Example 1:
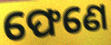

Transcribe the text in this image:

ଫେଣେ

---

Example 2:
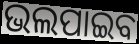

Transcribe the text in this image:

ଭଲପାଇବ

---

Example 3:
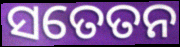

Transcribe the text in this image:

ସତେତନ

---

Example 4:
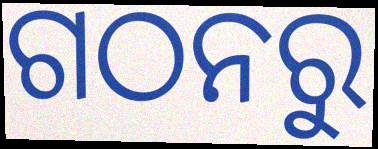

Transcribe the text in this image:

ଗଠନରୁ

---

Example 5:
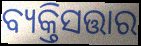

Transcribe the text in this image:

ବ୍ୟକ୍ତିସତ୍ତାର